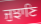
ਜੁਝਾਣਿ